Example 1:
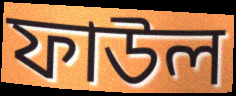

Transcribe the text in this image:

ফাউল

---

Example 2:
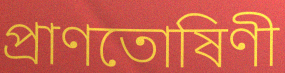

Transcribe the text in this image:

প্ৰাণতোষিণী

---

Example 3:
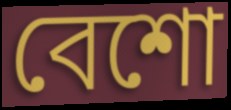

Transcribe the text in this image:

বেশো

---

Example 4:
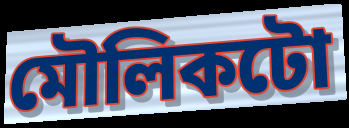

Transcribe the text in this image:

মৌলিকটো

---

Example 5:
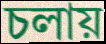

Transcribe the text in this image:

চলায়